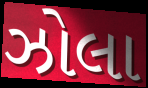
ઝોલા